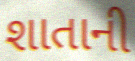
શાતાની